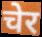
चेर